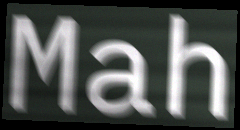
Mah